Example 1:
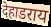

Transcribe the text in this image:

देहाडराय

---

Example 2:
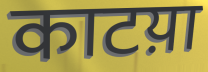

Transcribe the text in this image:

काटय़ा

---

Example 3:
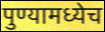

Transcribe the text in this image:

पुण्यामध्येच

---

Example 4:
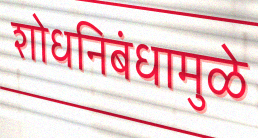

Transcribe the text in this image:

शोधनिबंधामुळे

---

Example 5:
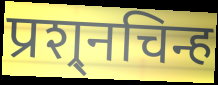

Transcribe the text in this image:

प्रश्र्नचिन्ह